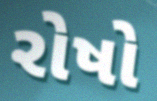
રોષો